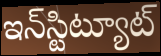
ఇన్‌స్టిట్యూట్